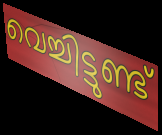
വെച്ചിട്ടുണ്ട്